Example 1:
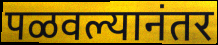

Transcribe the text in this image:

पळवल्यानंतर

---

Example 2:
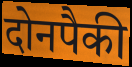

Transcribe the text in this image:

दोनपैकी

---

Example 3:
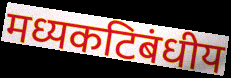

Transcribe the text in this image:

मध्यकटिबंधीय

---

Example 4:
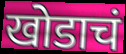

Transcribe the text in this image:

खोडाचं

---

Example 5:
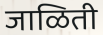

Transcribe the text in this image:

जाळिती